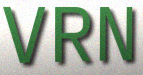
VRN